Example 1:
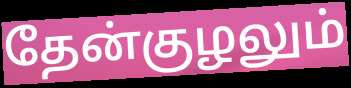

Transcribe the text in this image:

தேன்குழலும்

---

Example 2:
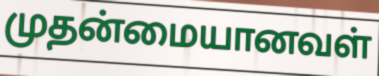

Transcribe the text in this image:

முதன்மையானவள்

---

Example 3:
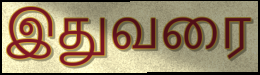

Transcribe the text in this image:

இதுவரை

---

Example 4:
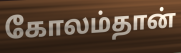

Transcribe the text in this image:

கோலம்தான்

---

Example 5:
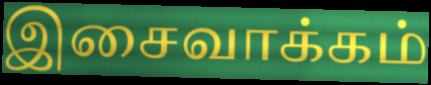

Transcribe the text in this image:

இசைவாக்கம்